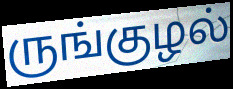
ருங்குழல்